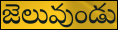
జెలువుండు